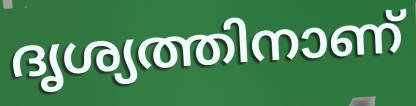
ദൃശ്യത്തിനാണ്